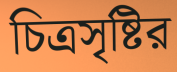
চিত্রসৃষ্টির